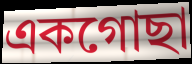
একগোছা